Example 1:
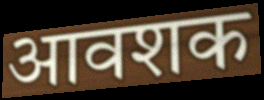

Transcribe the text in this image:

आवशक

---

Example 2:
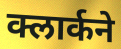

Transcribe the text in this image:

क्लार्कने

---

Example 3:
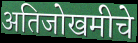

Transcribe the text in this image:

अतिजोखमीचे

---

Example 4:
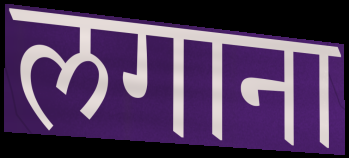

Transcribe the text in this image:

लगाना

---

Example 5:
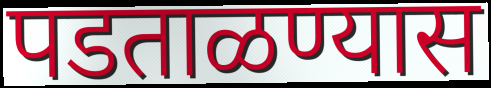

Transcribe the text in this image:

पडताळण्यास